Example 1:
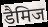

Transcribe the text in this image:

डैमिज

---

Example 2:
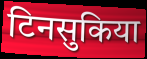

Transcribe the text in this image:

टिनसुकिया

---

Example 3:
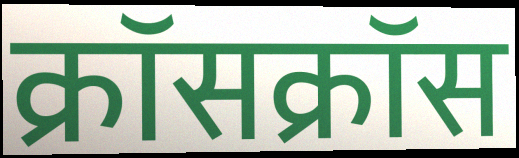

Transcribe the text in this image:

क्रॉसक्रॉस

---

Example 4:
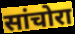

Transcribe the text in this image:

सांचोरा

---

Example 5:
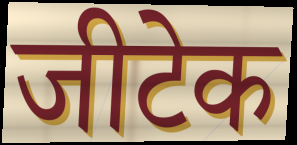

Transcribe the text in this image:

जीटेक